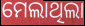
ମେଲାଥିଲା